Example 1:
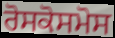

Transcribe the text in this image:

ਰੋਸਕੋਸਮੋਸ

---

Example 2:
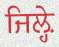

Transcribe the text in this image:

ਜਿਲ਼੍ਹੇ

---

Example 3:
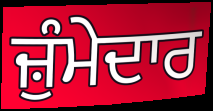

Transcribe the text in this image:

ਜ਼ੁੰਮੇਦਾਰ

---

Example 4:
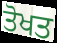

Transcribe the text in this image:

ਤੋਖਤ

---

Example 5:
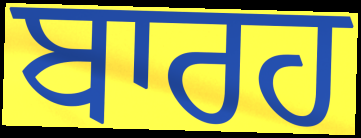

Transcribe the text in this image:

ਬਾਰਹ